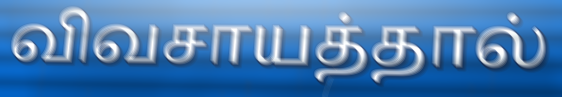
விவசாயத்தால்